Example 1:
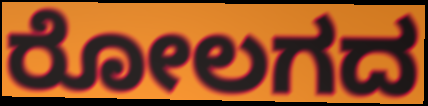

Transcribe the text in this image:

ರೋಲಗದ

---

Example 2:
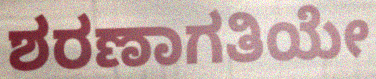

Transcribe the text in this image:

ಶರಣಾಗತಿಯೇ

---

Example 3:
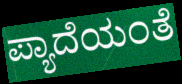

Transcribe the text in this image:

ಪ್ಯಾದೆಯಂತೆ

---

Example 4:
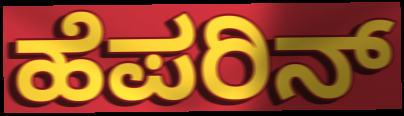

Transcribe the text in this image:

ಹೆಪರಿನ್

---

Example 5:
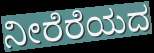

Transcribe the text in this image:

ನೀರೆರೆಯದ